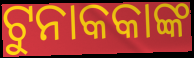
ଟୁନାକକାଙ୍କ